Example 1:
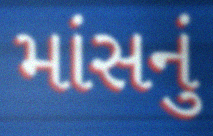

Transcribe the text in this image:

માંસનું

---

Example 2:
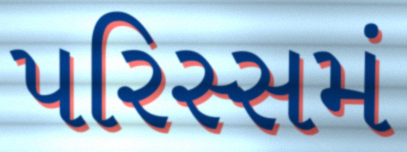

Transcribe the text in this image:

પરિસ્સમં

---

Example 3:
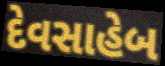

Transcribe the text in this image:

દેવસાહેબ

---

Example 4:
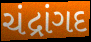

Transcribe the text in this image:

ચંદ્રાંગદ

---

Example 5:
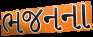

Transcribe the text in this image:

ભજનના